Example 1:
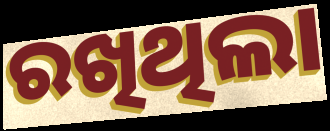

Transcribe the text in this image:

ରଖିଥିଲା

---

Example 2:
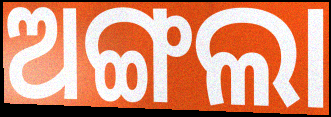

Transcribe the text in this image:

ଅଙ୍ଗଲା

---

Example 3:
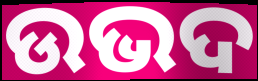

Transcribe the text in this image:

ଉଭଦ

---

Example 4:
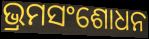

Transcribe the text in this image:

ଭ୍ରମସଂଶୋଧନ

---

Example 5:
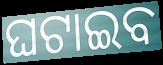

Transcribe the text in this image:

ଘଟାଇବ